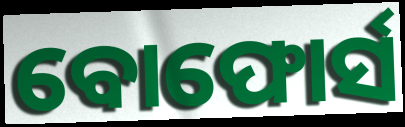
ବୋଫୋର୍ସ